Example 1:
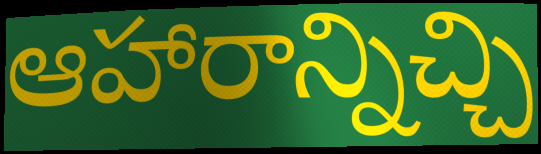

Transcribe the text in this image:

ఆహారాన్నిచ్చి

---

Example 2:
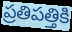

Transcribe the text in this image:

ప్రతిపత్తికి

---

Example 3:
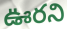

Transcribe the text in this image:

ఊరని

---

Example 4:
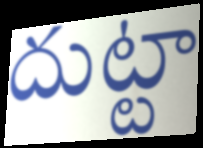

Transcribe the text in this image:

దుట్టా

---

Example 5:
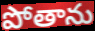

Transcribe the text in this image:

పోతాను